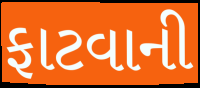
ફાટવાની